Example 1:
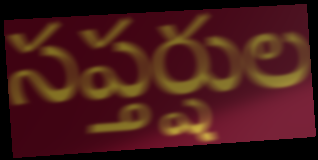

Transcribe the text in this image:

సప్తర్షుల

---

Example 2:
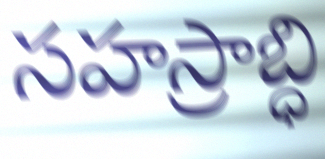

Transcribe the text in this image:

సహస్రాబ్ధి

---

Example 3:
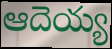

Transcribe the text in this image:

ఆదెయ్య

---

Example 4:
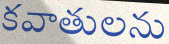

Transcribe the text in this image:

కవాతులను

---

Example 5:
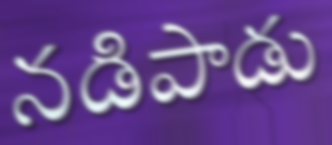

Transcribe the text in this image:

నడిపాడు